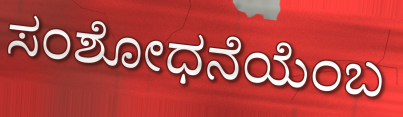
ಸಂಶೋಧನೆಯೆಂಬ